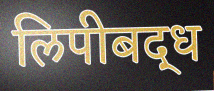
लिपीबद्ध